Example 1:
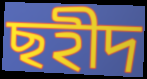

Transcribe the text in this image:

ছহীদ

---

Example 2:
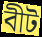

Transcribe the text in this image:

বীট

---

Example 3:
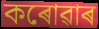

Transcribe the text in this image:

কৰোৱাৰ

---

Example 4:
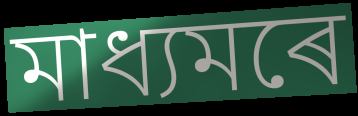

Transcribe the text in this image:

মাধ্যমৰে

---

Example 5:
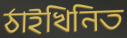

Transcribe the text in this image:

ঠাইখিনিত